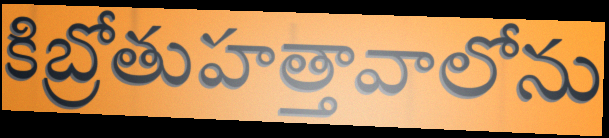
కిబ్రోతుహత్తావాలోను